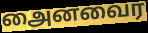
அைனவைர